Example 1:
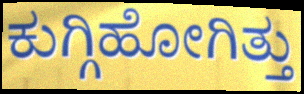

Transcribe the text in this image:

ಕುಗ್ಗಿಹೋಗಿತ್ತು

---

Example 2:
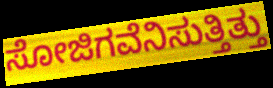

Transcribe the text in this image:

ಸೋಜಿಗವೆನಿಸುತ್ತಿತ್ತು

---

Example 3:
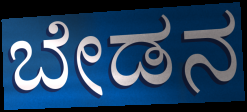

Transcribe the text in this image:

ಬೇಡನ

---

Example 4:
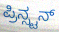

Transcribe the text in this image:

ಪ್ರಿನ್ಸ್ಟನ್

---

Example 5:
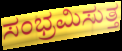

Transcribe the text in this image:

ಸಂಭ್ರಮಿಸುತ್ತ